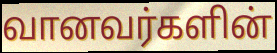
வானவர்களின்